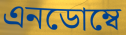
এনডোম্বে